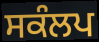
ਸਕੰਲਪ